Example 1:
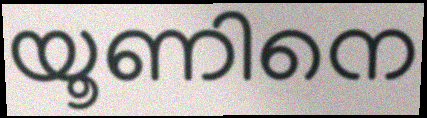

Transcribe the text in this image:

യൂണിനെ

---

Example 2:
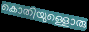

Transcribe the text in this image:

കൊതിയുള്ളൊരു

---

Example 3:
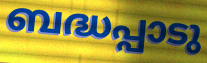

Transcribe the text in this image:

ബദ്ധപ്പാടു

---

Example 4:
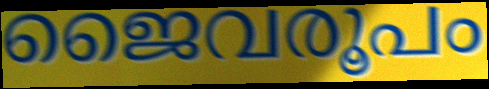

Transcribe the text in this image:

ജൈവരൂപം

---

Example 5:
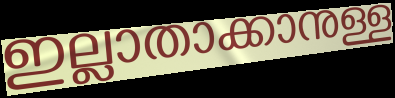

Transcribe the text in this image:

ഇല്ലാതാക്കാനുള്ള